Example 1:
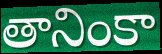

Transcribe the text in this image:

తానింకా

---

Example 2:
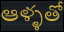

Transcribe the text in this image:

ఆళ్ళతో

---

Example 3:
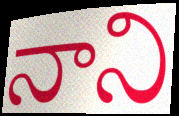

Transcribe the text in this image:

నాని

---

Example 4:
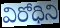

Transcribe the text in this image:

విరోధిని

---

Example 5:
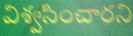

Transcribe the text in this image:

విశ్వసించారని